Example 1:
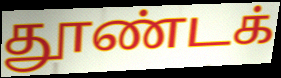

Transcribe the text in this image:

தூண்டக்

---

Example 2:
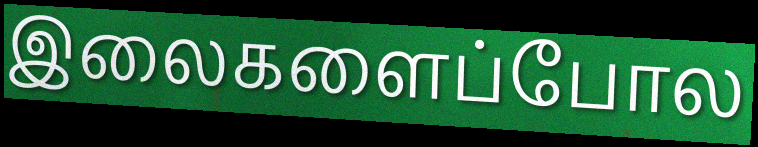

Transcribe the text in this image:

இலைகளைப்போல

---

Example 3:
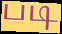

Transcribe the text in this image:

படி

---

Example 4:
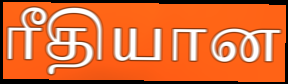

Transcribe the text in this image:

ரீதியான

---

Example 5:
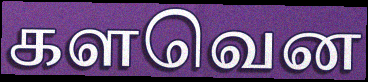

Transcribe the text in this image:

களவென